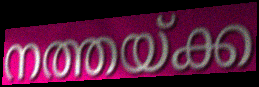
നത്തയ്ക്ക